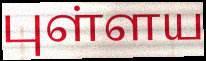
புள்ளய